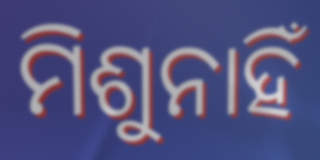
ମିଶୁନାହିଁ